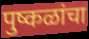
पुष्कळांचा